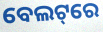
ବେଲଟ୍‌ରେ